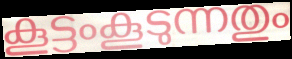
കൂട്ടംകൂടുന്നതും